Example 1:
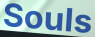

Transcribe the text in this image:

Souls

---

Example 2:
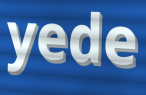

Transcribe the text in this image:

yede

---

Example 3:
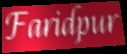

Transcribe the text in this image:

Faridpur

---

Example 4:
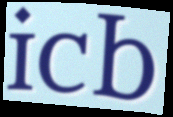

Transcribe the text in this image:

icb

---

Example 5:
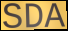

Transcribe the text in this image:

SDA